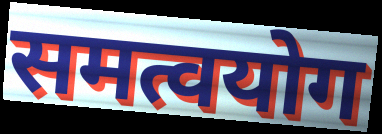
समत्वयोग